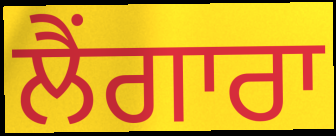
ਲੈਂਗਾਰਾ